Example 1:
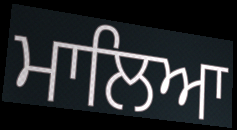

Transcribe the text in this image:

ਮਾਲਿਆ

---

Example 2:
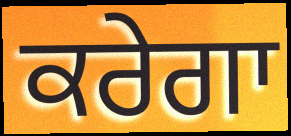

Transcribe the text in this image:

ਕਰੇਗਾ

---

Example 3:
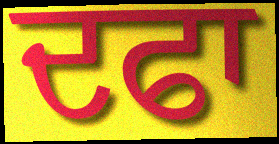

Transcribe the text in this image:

ਦਫਾ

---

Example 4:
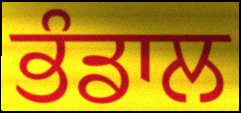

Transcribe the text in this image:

ਭੰਡਾਲ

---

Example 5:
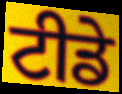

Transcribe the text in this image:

ਟੀਡੇ